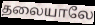
தலையாலே